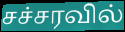
சச்சரவில்